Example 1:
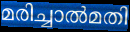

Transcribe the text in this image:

മരിച്ചാൽമതി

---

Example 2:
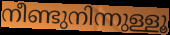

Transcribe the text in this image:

നീണ്ടുനിന്നുള്ളൂ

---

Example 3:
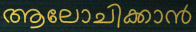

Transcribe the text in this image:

ആലോചിക്കാൻ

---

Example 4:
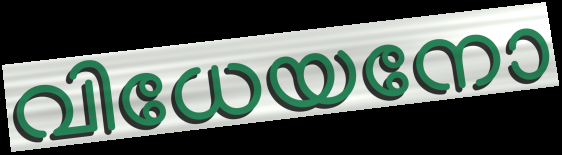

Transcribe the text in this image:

വിധേയനോ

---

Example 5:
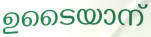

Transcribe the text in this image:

ഉടൈയാന്